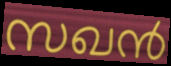
സഖൻ